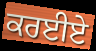
ਕਰਈਏ